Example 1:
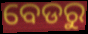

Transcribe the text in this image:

ବେଡରୁ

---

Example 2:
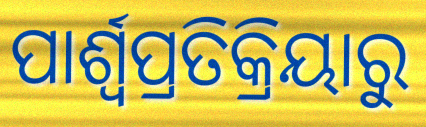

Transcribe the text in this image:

ପାର୍ଶ୍ୱପ୍ରତିକ୍ରିୟାରୁ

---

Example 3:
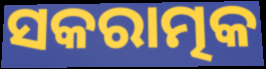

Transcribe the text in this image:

ସକରାତ୍ମକ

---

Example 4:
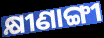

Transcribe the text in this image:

କ୍ଷୀଣାଙ୍ଗୀ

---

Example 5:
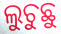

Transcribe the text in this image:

ଲୁଚୁଛୁ